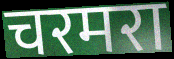
चरमरा